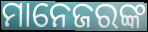
ମାନେଜରଙ୍କ